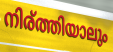
നിര്ത്തിയാലും